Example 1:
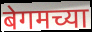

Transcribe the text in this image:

बेगमच्या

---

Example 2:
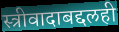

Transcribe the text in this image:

स्त्रीवादाबद्दलही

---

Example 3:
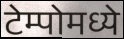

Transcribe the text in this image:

टेम्पोमध्ये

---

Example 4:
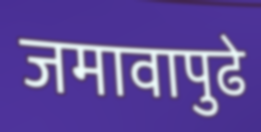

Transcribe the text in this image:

जमावापुढे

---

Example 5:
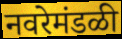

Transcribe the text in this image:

नवरेमंडळी